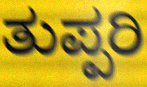
ತುಪ್ಪರಿ